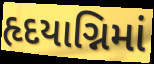
હૃદયાગ્નિમાં